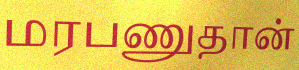
மரபணுதான்